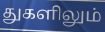
துகளிலும்